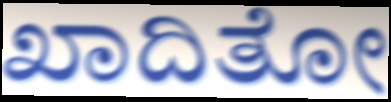
ಖಾದಿತೋ